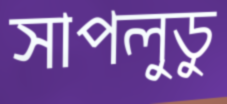
সাপলুডু